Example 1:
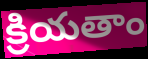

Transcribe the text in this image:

క్రియతాం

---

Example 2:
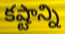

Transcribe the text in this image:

కష్టాన్ని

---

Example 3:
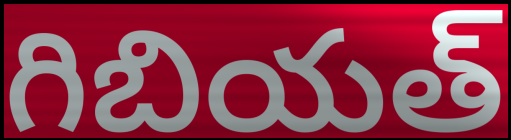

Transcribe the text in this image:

గిబియత్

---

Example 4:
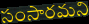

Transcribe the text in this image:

సంసారమని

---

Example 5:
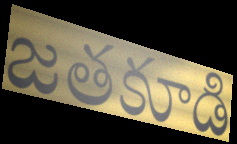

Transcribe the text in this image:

జతకూడి